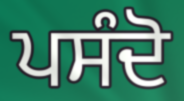
ਪਸੰਦੋ